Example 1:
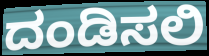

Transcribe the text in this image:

ದಂಡಿಸಲಿ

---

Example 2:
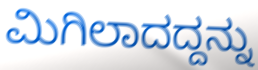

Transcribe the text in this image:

ಮಿಗಿಲಾದದ್ದನ್ನು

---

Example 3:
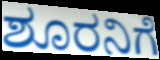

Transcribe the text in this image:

ಶೂರನಿಗೆ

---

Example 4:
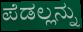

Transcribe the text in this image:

ಪೆಡಲ್ಲನ್ನು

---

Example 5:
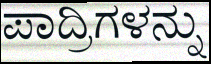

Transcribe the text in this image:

ಪಾದ್ರಿಗಳನ್ನು